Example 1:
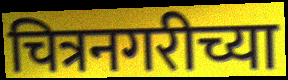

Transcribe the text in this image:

चित्रनगरीच्या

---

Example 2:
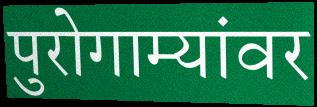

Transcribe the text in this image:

पुरोगाम्यांवर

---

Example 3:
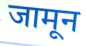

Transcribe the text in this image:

जामून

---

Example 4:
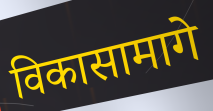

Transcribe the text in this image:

विकासामागे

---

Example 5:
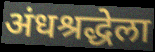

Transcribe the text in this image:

अंधश्रद्धेला